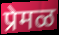
प्रेमळ